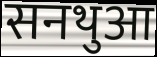
सनथुआ